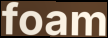
foam